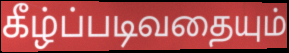
கீழ்ப்படிவதையும்